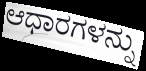
ಆಧಾರಗಳನ್ನು